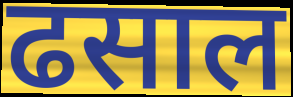
ढसाल